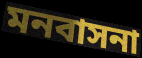
মনবাসনা